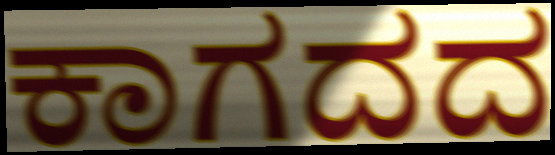
ಕಾಗದದ